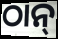
ଠାନ୍